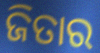
ଜିତାର